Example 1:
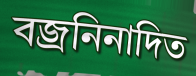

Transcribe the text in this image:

বজ্রনিনাদিত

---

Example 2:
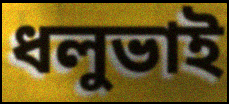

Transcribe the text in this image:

ধলুভাই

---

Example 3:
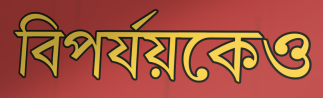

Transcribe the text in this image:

বিপর্যয়কেও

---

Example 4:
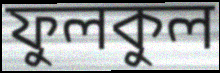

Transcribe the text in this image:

ফুলকুল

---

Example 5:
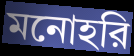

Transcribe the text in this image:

মনোহরি